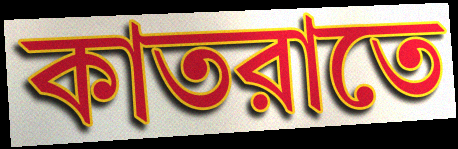
কাতরাতে